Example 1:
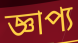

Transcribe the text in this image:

জ্ঞাপ্য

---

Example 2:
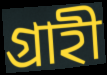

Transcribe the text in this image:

গ্রাহী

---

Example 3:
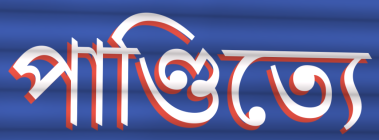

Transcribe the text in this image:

পাণ্ডিত্যে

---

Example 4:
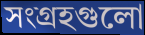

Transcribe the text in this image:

সংগ্রহগুলো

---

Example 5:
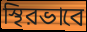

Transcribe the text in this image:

স্থিরভাবে